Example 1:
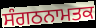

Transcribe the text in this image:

ਸੰਗਠਨਾਮਤਕ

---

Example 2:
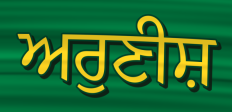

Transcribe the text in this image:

ਅਰੁਣੀਸ਼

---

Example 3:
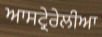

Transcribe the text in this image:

ਆਸਟ੍ਰੇਰੇਲੀਆ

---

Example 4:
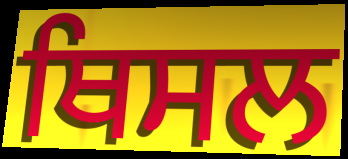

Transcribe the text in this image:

ਥਿਸਲ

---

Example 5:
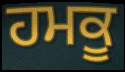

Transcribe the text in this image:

ਹਮਕੂ